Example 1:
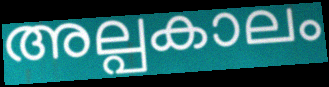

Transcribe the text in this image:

അല്പകാലം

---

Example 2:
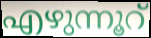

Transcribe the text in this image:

എഴുന്നൂറ്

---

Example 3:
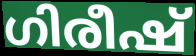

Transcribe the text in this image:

ഗിരീഷ്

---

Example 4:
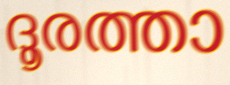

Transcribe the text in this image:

ദൂരത്താ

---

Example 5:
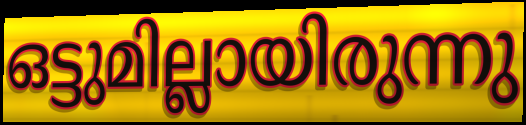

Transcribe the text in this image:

ഒട്ടുമില്ലായിരുന്നു